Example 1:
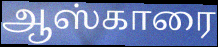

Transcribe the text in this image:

ஆஸ்காரை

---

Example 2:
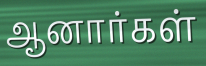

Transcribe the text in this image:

ஆனார்கள்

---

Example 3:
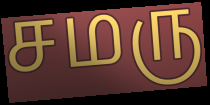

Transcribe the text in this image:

சமரு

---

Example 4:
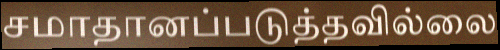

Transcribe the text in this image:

சமாதானப்படுத்தவில்லை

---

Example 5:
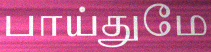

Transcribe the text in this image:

பாய்துமே